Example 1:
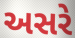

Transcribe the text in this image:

અસરે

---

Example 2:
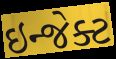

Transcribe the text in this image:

ઇન્જેક્ટ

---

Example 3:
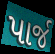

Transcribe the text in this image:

પાર્જ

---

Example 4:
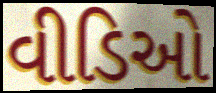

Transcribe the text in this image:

વીડિઓ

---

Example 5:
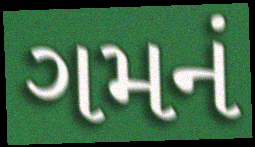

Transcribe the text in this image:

ગમનં